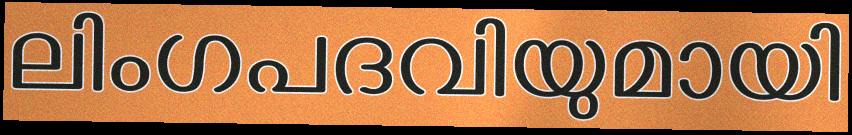
ലിംഗപദവിയുമായി